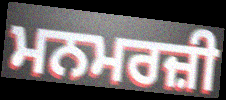
ਮਨਮਰਜ਼ੀ